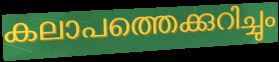
കലാപത്തെക്കുറിച്ചും